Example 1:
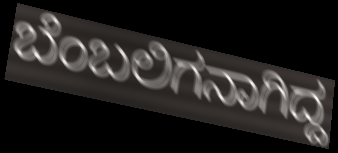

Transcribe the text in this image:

ಬೆಂಬಲಿಗನಾಗಿದ್ದ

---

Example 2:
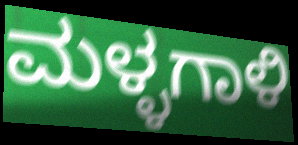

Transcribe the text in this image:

ಮಳ್ಳಗಾಳಿ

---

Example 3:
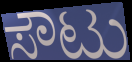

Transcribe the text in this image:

ಸೌಟು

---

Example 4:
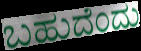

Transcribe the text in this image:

ಬಹುದೆಂದು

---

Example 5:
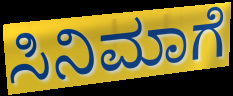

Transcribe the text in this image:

ಸಿನಿಮಾಗೆ